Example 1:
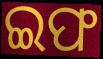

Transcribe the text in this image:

ଇଫ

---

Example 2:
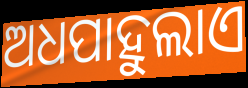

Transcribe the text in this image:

ଅଧପାହୁଲାଏ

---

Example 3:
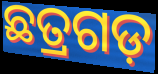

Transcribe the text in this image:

ଛତ୍ରଗଡ଼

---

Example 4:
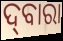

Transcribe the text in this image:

ଦ୍‌ବାରା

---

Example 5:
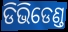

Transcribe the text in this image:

ଡିଭିଡେଣ୍ଡ